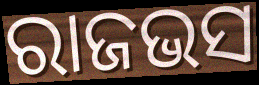
ରାଜଭସ